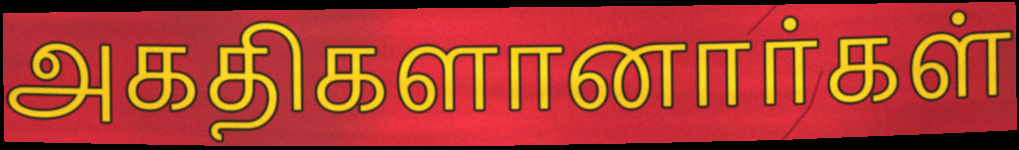
அகதிகளானார்கள்